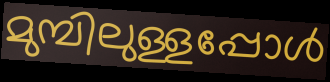
മുമ്പിലുള്ളപ്പോൾ